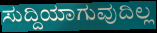
ಸುದ್ದಿಯಾಗುವುದಿಲ್ಲ